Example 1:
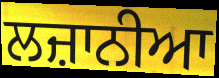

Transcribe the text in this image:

ਲਜ਼ਾਨੀਆ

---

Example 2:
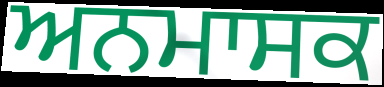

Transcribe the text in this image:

ਅਨਮਾਸਕ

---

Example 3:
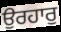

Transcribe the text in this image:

ਉਰਹਾਰੁ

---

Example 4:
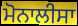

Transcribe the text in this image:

ਮੋਨਾਲੀਸਾ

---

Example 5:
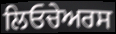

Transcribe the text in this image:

ਲਿਓਚੇਅਰਸ